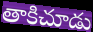
తాకిచూడు